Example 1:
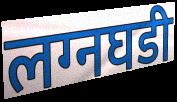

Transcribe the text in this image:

लग्नघडी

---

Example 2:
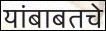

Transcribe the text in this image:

यांबाबतचे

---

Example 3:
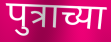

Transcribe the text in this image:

पुत्राच्या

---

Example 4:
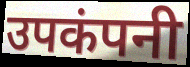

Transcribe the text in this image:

उपकंपनी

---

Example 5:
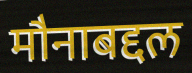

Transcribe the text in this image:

मौनाबद्दल